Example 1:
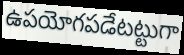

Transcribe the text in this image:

ఉపయోగపడేటట్టుగా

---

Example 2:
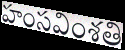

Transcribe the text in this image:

హంసవింశతి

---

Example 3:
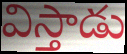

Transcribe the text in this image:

విస్తాడు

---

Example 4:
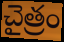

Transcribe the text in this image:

చైత్రం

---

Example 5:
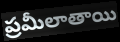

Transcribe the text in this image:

ప్రమీలాతాయి